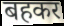
बहकर